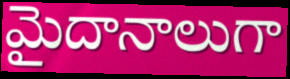
మైదానాలుగా